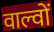
वाल्वों